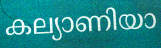
കല്യാണിയാ